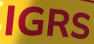
IGRS